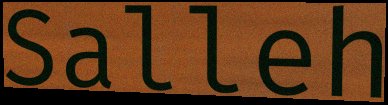
Salleh